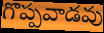
గొప్పవాడవు